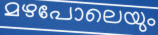
മഴപോലെയും